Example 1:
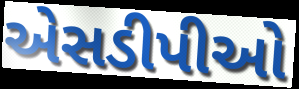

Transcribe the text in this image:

એસડીપીઓ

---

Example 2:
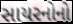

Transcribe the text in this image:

સાયરનોનો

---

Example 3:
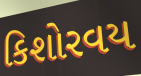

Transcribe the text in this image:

કિશોરવય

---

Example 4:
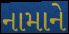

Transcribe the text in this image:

નામાને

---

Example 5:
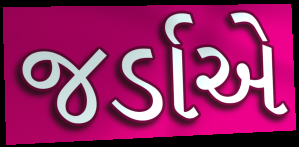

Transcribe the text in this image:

જર્ડાએ